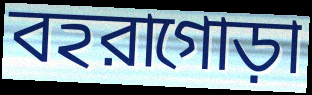
বহরাগোড়া